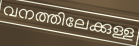
വനത്തിലേക്കുള്ള